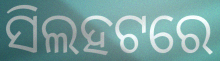
ସିଲହଟରେ